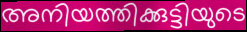
അനിയത്തിക്കുട്ടിയുടെ